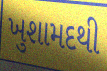
ખુશામદથી